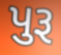
પુરૂ